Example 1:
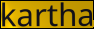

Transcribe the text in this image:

kartha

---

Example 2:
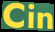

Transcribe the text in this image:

Cin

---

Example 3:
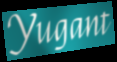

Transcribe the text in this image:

Yugant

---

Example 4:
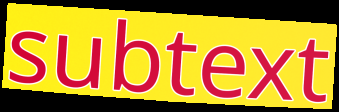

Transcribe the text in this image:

subtext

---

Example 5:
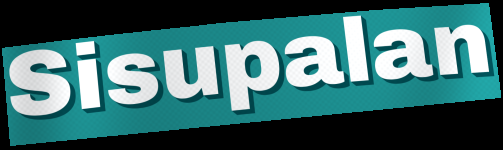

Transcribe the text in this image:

Sisupalan